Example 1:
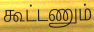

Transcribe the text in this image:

கூட்டணும்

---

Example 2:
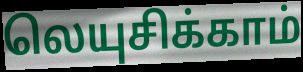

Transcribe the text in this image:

லெயுசிக்காம்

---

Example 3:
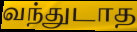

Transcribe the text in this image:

வந்துடாத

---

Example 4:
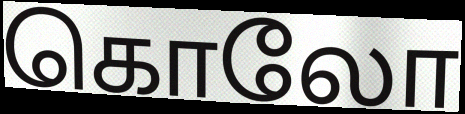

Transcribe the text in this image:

கொலோ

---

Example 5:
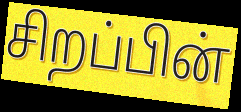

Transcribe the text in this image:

சிறப்பின்